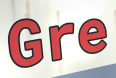
Gre